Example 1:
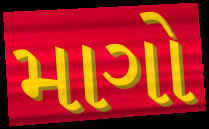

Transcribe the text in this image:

માગો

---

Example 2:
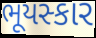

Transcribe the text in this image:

ભૂયસ્કાર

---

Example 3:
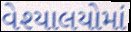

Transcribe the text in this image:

વેશ્યાલયોમાં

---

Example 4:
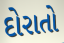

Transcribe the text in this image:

દોરાતો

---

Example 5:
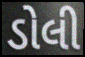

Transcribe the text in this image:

ડોલી